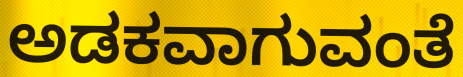
ಅಡಕವಾಗುವಂತೆ